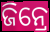
ଜିନ୍ରେ